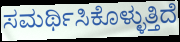
ಸಮರ್ಥಿಸಿಕೊಳ್ಳುತ್ತಿದೆ